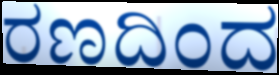
ರಣದಿಂದ